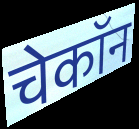
चेकॉन